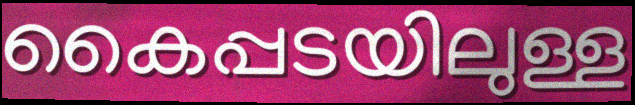
കൈപ്പടയിലുള്ള